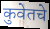
कुवेतचे